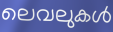
ലെവലുകൾ